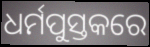
ଧର୍ମପୁସ୍ତକରେ